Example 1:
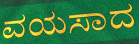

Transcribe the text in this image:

ವಯಸಾದ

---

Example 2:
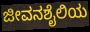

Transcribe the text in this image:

ಜೀವನಶೈಲಿಯ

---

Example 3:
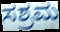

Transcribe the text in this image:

ಸಶ್ರಮ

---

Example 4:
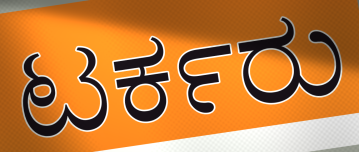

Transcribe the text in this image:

ಟರ್ಕರು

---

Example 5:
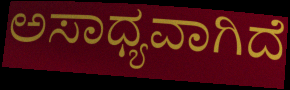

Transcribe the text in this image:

ಅಸಾಧ್ಯವಾಗಿದೆ